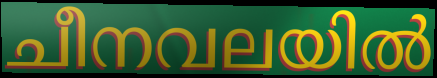
ചീനവലയിൽ